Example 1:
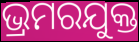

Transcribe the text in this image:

ଭ୍ରମରଯୁକ୍ତ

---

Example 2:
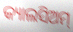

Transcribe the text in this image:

କ୍ୟାଲସିଅମ୍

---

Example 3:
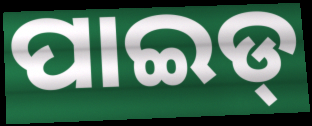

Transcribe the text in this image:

ପାଇଡ୍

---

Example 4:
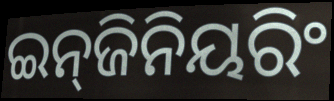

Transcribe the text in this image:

ଇନ୍‍ଜିନିୟରିଂ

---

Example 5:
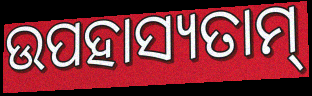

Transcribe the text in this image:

ଉପହାସ୍ୟତାମ୍